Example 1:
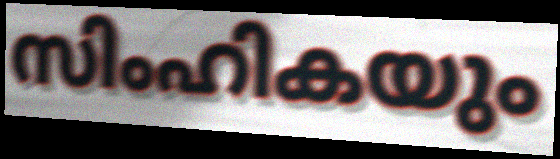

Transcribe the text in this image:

സിംഹികയും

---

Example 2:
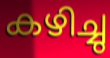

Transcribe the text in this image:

കഴിച്ചു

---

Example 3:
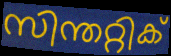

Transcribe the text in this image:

സിന്തറ്റിക്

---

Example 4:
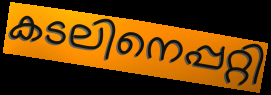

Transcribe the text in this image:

കടലിനെപ്പറ്റി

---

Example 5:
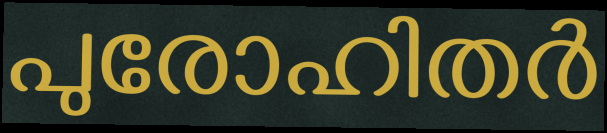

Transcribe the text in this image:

പുരോഹിതർ